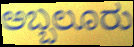
ಅಬ್ಬಲೂರು